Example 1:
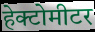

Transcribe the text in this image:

हेक्टोमीटर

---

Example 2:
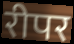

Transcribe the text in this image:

रीपर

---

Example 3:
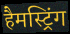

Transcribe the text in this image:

हैमस्ट्रिंग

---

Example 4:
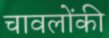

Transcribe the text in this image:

चावलोंकी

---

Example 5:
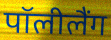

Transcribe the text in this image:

पॉलीलैंग